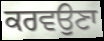
ਕਰਵਉਣਾ